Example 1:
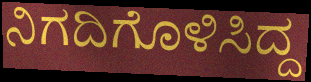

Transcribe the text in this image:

ನಿಗದಿಗೊಳಿಸಿದ್ದ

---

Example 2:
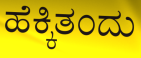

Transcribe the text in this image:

ಹೆಕ್ಕಿತಂದು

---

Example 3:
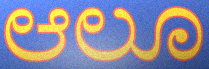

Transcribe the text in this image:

ಆಲೂ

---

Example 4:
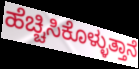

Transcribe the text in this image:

ಹೆಚ್ಚಿಸಿಕೊಳ್ಳುತ್ತಾನೆ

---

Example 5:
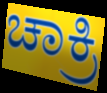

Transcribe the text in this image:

ಚಾಕ್ರಿ